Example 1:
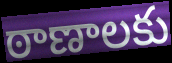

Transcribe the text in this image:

ఠాణాలకు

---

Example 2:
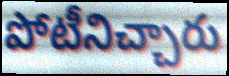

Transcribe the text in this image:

పోటీనిచ్చారు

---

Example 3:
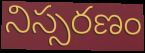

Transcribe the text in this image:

నిస్సరణం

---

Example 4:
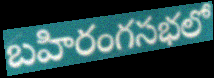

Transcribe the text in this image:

బహిరంగసభలో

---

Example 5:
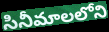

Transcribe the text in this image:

సినీమాలలోని